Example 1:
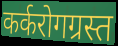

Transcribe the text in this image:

कर्करोगग्रस्त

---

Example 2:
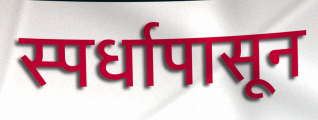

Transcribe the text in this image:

स्पर्धापासून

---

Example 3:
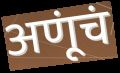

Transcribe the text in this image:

अणूंचं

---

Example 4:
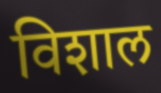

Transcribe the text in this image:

विशाल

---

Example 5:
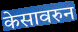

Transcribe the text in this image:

केसावरुन